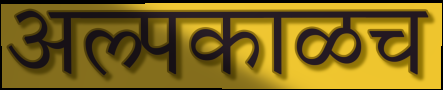
अल्पकाळच